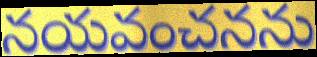
నయవంచనను